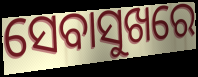
ସେବାସୁଖରେ